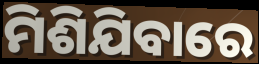
ମିଶିଯିବାରେ